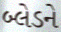
બ્લેડને